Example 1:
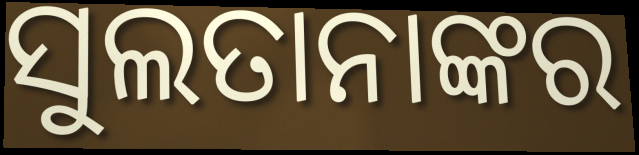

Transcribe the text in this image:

ସୁଲତାନାଙ୍କର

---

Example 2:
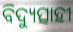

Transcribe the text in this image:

ବିଦ୍ୟୁତ୍ସାହୀ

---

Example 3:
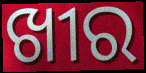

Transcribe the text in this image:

ଖୀର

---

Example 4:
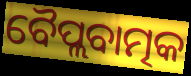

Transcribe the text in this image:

ବୈପ୍ଲବାତ୍ମକ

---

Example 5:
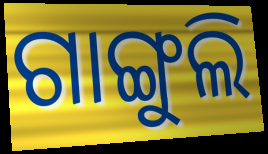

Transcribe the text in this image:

ଗାଙ୍ଗୁଲି